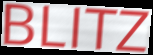
BLITZ